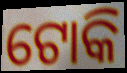
ଟୋକି